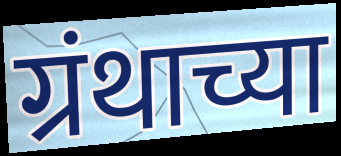
ग्रंथाच्या